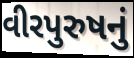
વીરપુરુષનું